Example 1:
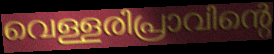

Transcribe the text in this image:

വെള്ളരിപ്രാവിന്റെ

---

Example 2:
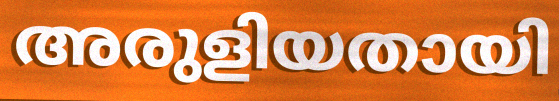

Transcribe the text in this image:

അരുളിയതായി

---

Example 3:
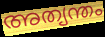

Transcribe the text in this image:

അത്യന്തം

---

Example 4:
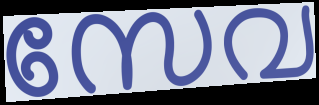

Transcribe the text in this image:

സേവ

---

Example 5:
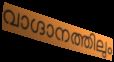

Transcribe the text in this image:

വാഗ്ദാനത്തിലും